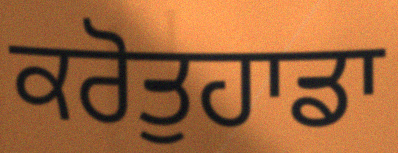
ਕਰੋਤੁਹਾਡਾ